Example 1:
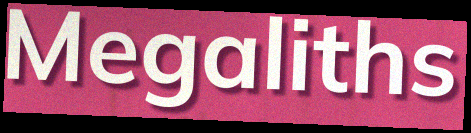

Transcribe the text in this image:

Megaliths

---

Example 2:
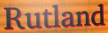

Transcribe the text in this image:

Rutland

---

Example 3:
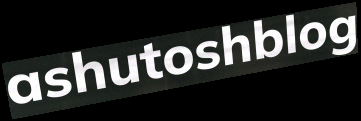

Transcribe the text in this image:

ashutoshblog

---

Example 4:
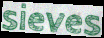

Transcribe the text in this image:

sieves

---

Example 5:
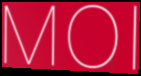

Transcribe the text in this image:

MOI